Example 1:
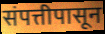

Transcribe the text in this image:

संपत्तीपासून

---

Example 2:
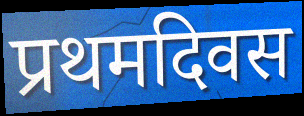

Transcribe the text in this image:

प्रथमदिवस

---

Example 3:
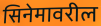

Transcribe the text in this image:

सिनेमावरील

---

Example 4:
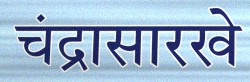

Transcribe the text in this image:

चंद्रासारखे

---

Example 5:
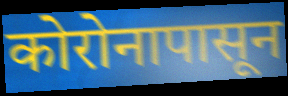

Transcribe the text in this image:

कोरोनापासून